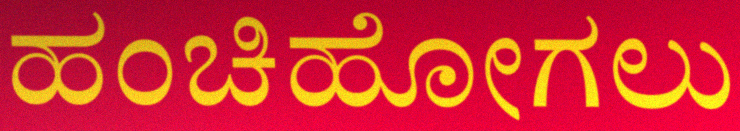
ಹಂಚಿಹೋಗಲು